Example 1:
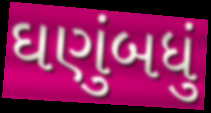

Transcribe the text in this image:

ઘણુંબધું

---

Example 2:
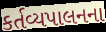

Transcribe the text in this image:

કર્તવ્યપાલનના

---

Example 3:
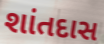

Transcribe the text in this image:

શાંતદાસ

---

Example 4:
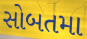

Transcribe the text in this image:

સોબતમા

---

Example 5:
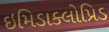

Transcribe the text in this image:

ઇમિડાક્લોપ્રિડ